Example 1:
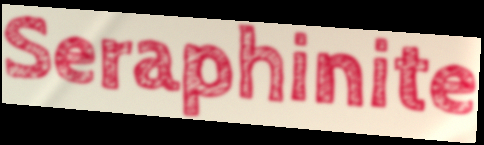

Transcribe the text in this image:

Seraphinite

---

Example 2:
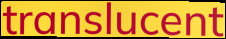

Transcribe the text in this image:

translucent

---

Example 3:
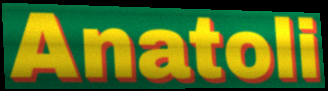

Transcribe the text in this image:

Anatoli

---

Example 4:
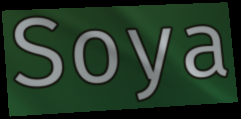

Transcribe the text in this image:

Soya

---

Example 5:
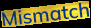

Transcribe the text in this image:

Mismatch